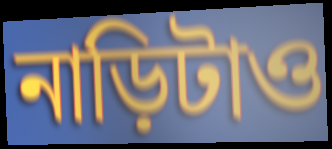
নাড়িটাও